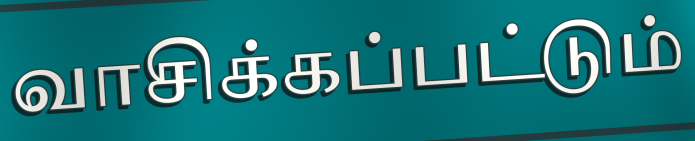
வாசிக்கப்பட்டும்